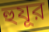
হুযূর